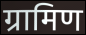
ग्रामिण